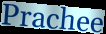
Prachee